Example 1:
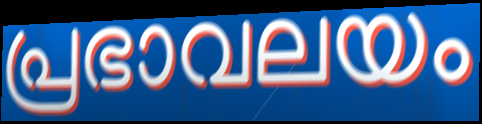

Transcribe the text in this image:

പ്രഭാവലയം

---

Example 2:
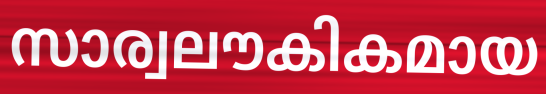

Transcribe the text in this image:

സാര്വലൗകികമായ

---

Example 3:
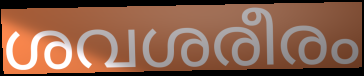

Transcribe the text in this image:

ശവശരീരം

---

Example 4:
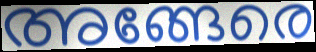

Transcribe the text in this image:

അങ്ങേരെ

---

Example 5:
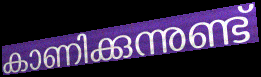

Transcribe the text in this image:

കാണിക്കുന്നുണ്ട്